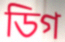
ডিগ